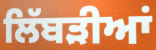
ਲਿੱਬੜੀਆਂ